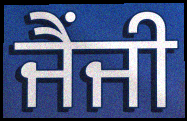
ਜੈਂਜੀ